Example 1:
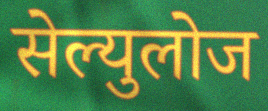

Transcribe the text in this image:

सेल्युलोज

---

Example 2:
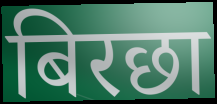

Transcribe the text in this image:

बिरछा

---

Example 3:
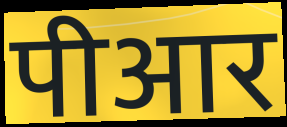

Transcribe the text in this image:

पीआर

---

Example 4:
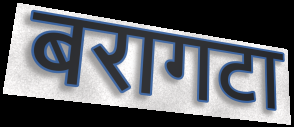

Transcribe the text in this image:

बरागटा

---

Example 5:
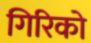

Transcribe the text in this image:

गिरिको